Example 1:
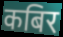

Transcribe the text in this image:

कबिर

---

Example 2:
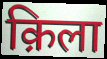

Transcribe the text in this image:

क़िला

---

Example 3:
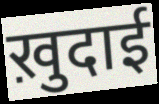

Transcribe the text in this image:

ख़ुदाई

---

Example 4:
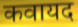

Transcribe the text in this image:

कवायद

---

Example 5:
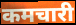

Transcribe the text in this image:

कमचारी